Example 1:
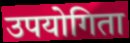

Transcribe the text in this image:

उपयोगिता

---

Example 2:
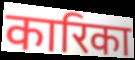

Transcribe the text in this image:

कारिका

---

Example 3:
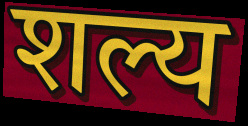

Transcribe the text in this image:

शल्‍य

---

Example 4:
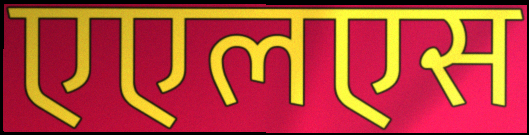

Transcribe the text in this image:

एएलएस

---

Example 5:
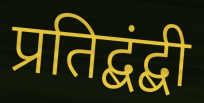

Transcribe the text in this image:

प्रतिद्बंद्बी